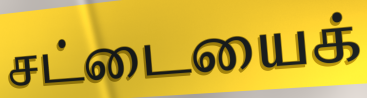
சட்டையைக்